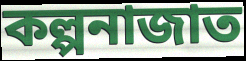
কল্পনাজাত